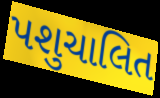
પશુચાલિત